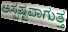
ಅಸ್ಪಷ್ಟವಾಗುತ್ತ